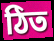
ঠিত